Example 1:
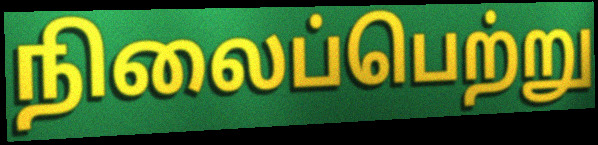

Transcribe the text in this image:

நிலைப்பெற்று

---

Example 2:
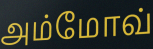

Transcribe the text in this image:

அம்மோவ்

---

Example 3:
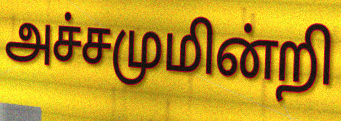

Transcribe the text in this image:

அச்சமுமின்றி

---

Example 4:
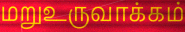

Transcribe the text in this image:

மறுஉருவாக்கம்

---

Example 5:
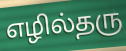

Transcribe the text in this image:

எழில்தரு